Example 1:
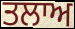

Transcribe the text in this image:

ਤਲਾਅ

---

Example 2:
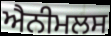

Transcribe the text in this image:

ਐਨੀਮਲਸ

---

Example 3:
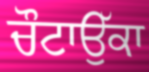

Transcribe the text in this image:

ਚੌਟਾਉੱਕਾ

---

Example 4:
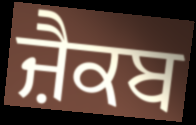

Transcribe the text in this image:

ਜ਼ੈਕਬ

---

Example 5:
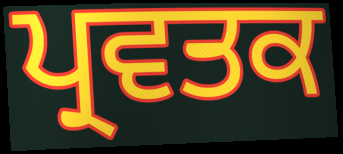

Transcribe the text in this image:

ਪ੍ਰਵਤਕ